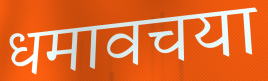
धमावचया